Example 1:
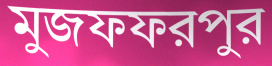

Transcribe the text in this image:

মুজফফরপুর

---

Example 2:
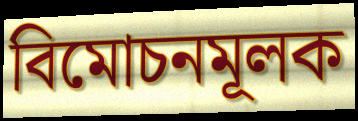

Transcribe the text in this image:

বিমোচনমূলক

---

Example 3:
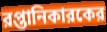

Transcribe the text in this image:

রপ্তানিকারকের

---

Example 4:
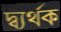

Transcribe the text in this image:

দ্ব্যর্থক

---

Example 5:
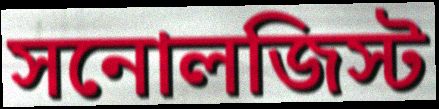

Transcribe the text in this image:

সনোলজিস্ট